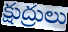
క్షుద్రులు